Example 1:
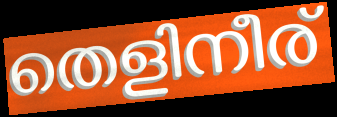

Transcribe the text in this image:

തെളിനീര്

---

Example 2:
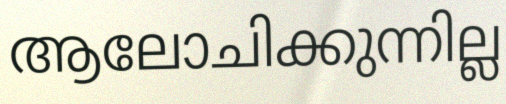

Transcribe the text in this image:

ആലോചിക്കുന്നില്ല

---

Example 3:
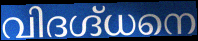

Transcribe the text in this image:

വിദഗ്ദ്ധനെ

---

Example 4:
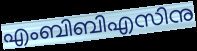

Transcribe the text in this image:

എംബിബിഎസിനു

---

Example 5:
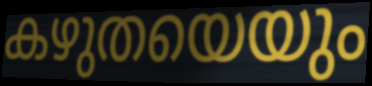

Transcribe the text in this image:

കഴുതയെയും